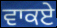
ਵਾਕਏ